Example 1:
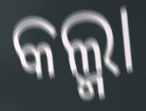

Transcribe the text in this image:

କଲ୍ମା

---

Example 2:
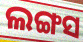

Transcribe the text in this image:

ଲଙ୍ଗସ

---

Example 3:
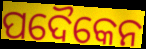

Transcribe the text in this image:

ପଦୈକେନ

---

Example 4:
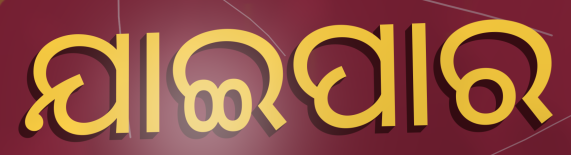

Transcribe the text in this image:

ଯାଇପାର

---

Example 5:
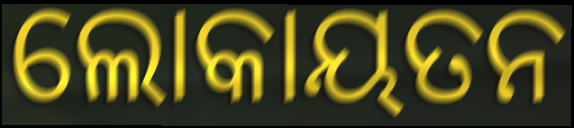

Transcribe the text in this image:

ଲୋକାୟତନ